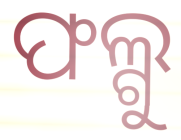
ଫଲ୍ଗୁ